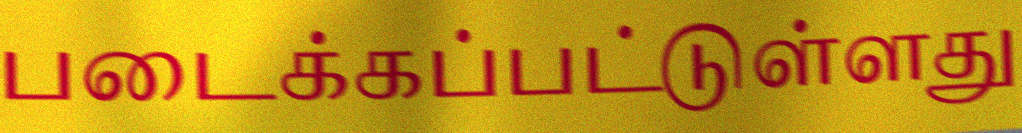
படைக்கப்பட்டுள்ளது